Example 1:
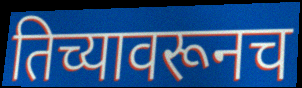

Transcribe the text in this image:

तिच्यावरूनच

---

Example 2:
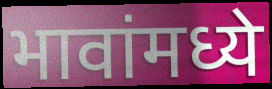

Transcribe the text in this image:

भावांमध्ये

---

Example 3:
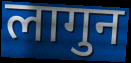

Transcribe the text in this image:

लागुन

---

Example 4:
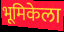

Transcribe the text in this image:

भूमिकेला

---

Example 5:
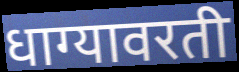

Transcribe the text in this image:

धाग्यावरती